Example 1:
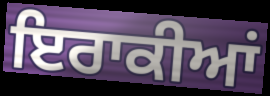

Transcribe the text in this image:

ਇਰਾਕੀਆਂ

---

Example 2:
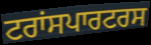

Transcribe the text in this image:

ਟਰਾਂਸਪਾਰਟਰਸ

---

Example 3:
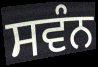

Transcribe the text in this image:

ਸਵੰਨ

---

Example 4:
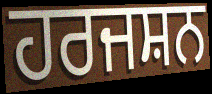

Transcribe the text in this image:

ਹਰਜਸ਼ਨ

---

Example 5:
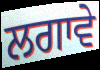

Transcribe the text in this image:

ਲਗਾਵੇ